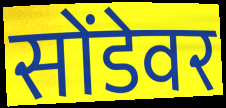
सोंडेवर